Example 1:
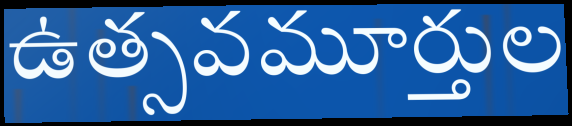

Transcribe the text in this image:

ఉత్సవమూర్తుల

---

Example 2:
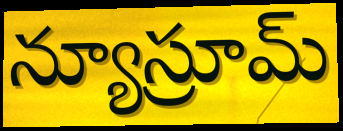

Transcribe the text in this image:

న్యూస్రూమ్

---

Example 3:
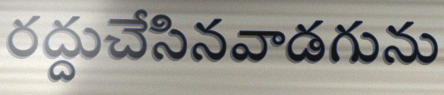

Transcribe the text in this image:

రద్దుచేసినవాడగును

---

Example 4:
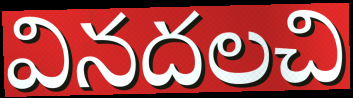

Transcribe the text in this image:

వినదలచి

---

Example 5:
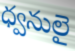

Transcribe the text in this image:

ధ్వనులై